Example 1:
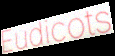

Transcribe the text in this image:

Eudicots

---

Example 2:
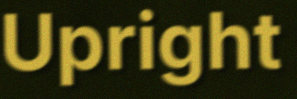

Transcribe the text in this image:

Upright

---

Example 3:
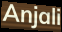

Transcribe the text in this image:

Anjali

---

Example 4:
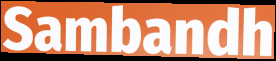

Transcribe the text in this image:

Sambandh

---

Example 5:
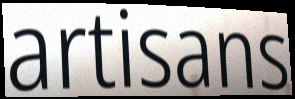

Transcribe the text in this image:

artisans